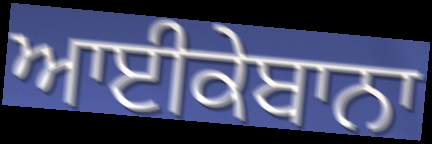
ਆਈਕੇਬਾਨਾ